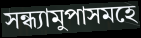
সন্ধ্যামুপাসমহে